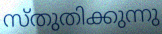
സ്തുതിക്കുന്നു